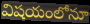
విషయంలోనూ